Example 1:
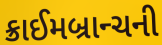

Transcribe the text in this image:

ક્રાઈમબ્રાન્ચની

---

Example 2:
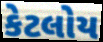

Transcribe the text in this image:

કેટલોય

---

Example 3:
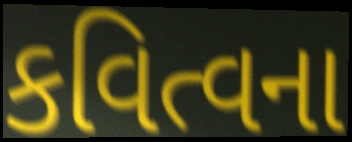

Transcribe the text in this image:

કવિત્વના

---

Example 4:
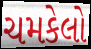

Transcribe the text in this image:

ચમકેલો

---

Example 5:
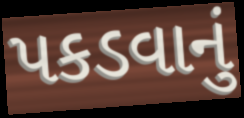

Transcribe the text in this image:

પકડવાનું